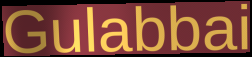
Gulabbai